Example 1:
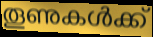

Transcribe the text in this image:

തൂണുകൾക്ക്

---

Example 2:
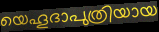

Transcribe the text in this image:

യെഹൂദാപുത്രിയായ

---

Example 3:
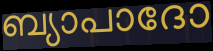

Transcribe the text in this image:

ബ്യാപാദോ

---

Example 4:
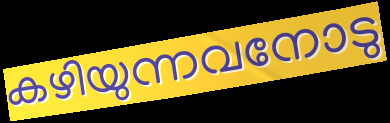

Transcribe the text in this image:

കഴിയുന്നവനോടു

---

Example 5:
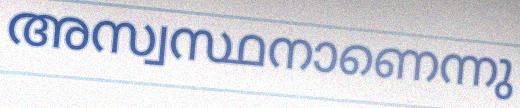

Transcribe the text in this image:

അസ്വസ്ഥനാണെന്നു